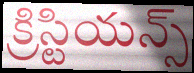
క్రిస్టియన్స్